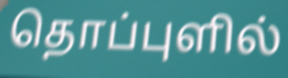
தொப்புளில்